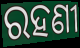
ରହଣୀ